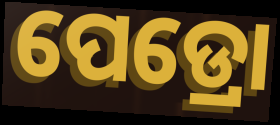
ପେଡ୍ରୋ